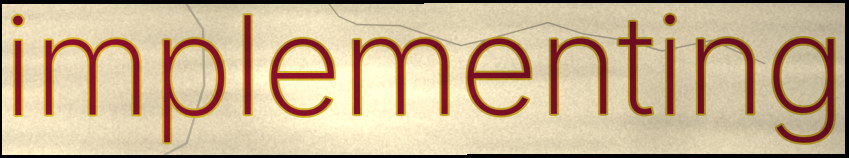
implementing